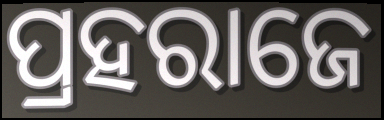
ପ୍ରହରାଜେ